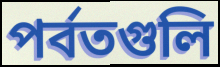
পর্বতগুলি